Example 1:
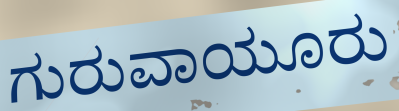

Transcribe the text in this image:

ಗುರುವಾಯೂರು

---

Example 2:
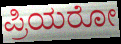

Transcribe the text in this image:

ಪ್ರಿಯರೋ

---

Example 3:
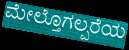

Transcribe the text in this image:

ಮೇಲ್ತೊಗಲ್ಪರೆಯ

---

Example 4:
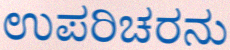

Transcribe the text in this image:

ಉಪರಿಚರನು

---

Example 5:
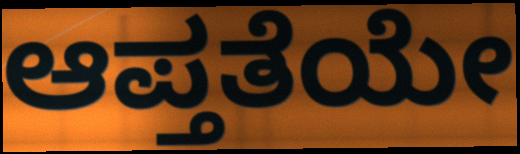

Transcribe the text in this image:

ಆಪ್ತತೆಯೇ